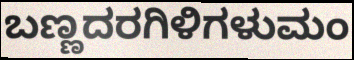
ಬಣ್ಣದರಗಿಳಿಗಳುಮಂ